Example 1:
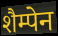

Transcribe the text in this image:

शैम्पेन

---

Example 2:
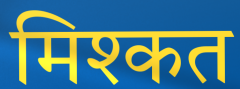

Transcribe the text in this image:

मिश्कत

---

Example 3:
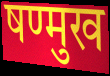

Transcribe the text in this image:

षण्मुख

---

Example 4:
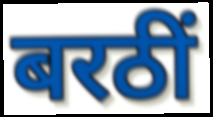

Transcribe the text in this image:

बरठीं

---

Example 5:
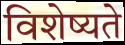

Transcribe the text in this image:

विशेष्यते